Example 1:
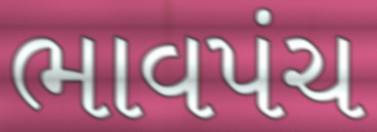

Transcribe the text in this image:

ભાવપંચ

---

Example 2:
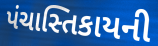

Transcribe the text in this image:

પંચાસ્તિકાયની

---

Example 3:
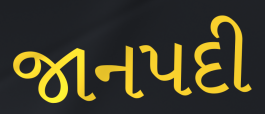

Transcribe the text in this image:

જાનપદી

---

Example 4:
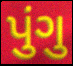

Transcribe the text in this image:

પુંગુ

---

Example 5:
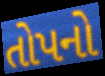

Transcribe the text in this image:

તોપનો